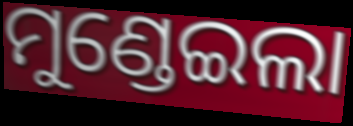
ମୁଣ୍ଡେଇଲା